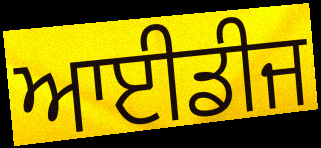
ਆਈਡੀਜ